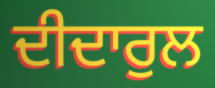
ਦੀਦਾਰੁਲ